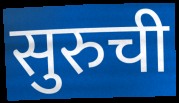
सुरुची